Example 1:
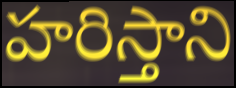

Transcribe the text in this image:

హరిస్తాని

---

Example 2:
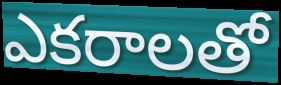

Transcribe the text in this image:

ఎకరాలతో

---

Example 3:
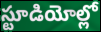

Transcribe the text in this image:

స్టూడియోల్లో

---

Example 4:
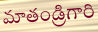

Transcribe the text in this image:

మాతండ్రిగారి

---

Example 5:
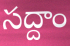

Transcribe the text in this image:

సద్దాం